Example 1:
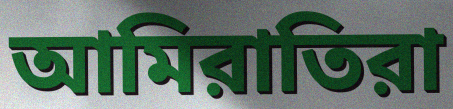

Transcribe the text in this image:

আমিরাতিরা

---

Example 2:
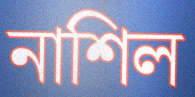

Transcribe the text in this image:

নাশিল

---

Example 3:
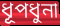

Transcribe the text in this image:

ধূপধুনা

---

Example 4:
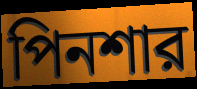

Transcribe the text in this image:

পিনশার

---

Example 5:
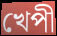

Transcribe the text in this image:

খেপী